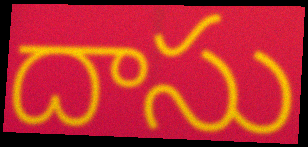
దాసు